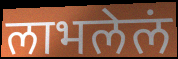
लाभलेलं